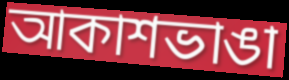
আকাশভাঙা